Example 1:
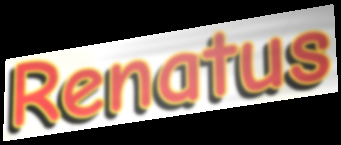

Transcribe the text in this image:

Renatus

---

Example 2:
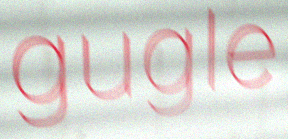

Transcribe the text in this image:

gugle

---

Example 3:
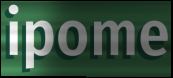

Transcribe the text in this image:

ipome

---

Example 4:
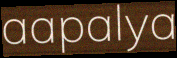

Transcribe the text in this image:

aapalya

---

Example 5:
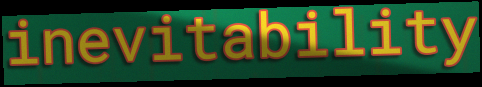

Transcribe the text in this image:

inevitability